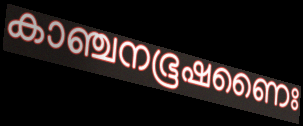
കാഞ്ചനഭൂഷണൈഃ